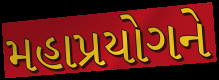
મહાપ્રયોગને